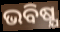
ଭବିଷ୍ଯ